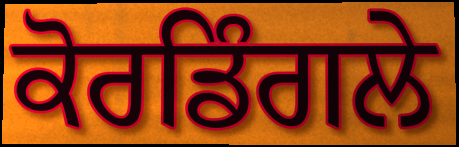
ਕੋਰਡਿੰਗਲੇ